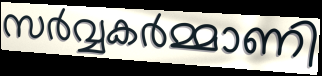
സർവ്വകർമ്മാണി